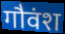
गौवंश